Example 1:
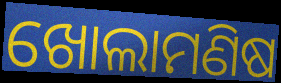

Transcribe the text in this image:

ଖୋଲାମଣିଷ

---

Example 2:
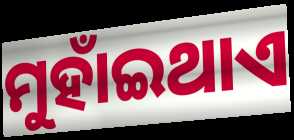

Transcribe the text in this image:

ମୁହାଁଇଥାଏ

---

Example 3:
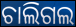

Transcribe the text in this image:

ଚାଲିଗଲ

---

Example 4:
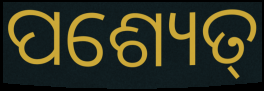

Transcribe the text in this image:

ପଶ୍ୟେତ୍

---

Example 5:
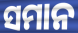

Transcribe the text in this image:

ସମାନ